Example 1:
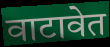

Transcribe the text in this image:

वाटावेत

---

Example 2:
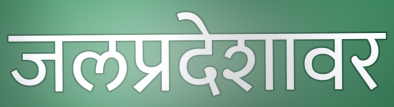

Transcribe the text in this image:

जलप्रदेशावर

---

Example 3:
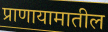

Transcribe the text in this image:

प्राणायामातील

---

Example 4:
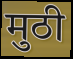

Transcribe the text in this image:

मुठी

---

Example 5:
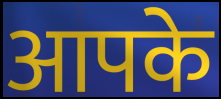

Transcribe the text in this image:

आपके